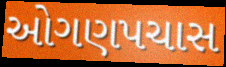
ઓગણપચાસ